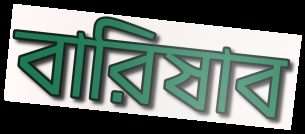
বারিষাব